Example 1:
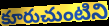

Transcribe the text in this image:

కూరుచుంటిని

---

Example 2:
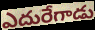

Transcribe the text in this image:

ఎదురేగాడు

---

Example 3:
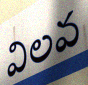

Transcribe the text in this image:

విలవ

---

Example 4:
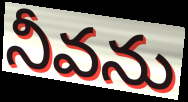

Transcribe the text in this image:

నీవను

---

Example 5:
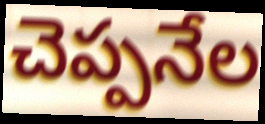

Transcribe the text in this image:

చెప్పనేల